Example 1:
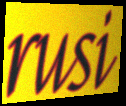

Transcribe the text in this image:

rusi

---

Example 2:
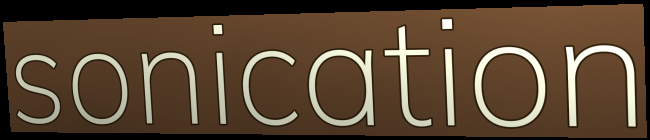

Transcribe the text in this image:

sonication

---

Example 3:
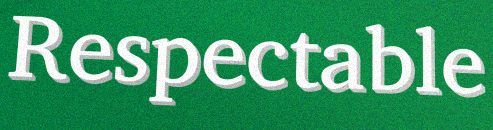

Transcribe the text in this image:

Respectable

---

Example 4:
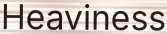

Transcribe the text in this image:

Heaviness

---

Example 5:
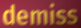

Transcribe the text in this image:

demiss